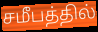
சமீபத்தில்